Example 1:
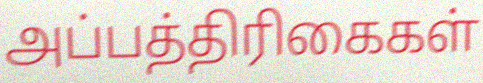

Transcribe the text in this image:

அப்பத்திரிகைகள்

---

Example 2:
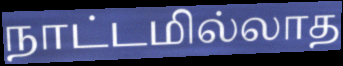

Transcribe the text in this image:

நாட்டமில்லாத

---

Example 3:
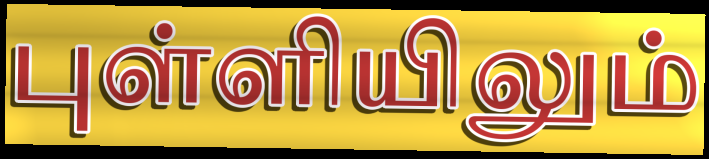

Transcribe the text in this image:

புள்ளியிலும்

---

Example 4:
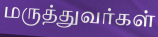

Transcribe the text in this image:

மருத்துவர்கள்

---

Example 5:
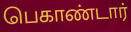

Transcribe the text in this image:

பெகாண்டார்